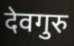
देवगुरु